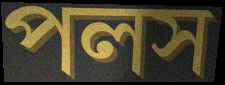
পলস